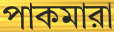
পাকমারা